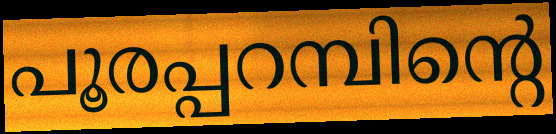
പൂരപ്പറമ്പിന്റെ